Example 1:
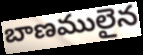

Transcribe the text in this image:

బాణములైన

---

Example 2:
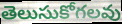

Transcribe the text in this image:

తెలుసుకోగలవు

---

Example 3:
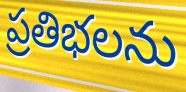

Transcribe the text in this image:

ప్రతిభలను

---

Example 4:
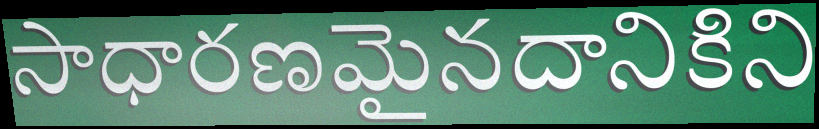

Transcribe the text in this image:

సాధారణమైనదానికిని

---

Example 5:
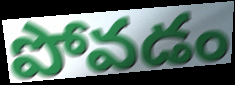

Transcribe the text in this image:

పోవడం